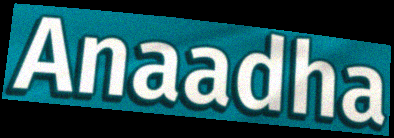
Anaadha